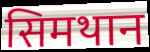
सिमथान